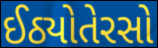
ઈઠ્યોતેરસો